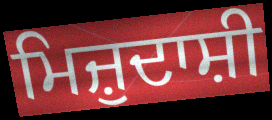
ਮਿਜ਼ੁਦਾਸ਼ੀ